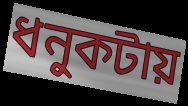
ধনুকটায়